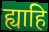
ह्याहि